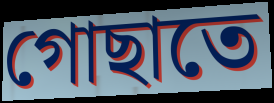
গোছাতে